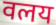
वलय